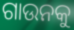
ଗାଉନକୁ